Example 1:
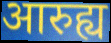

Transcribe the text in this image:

आरुह्य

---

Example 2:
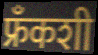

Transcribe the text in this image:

फ्रँकशी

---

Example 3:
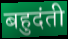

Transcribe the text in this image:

बहुदंती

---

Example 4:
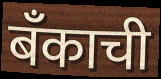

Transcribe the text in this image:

बँकाची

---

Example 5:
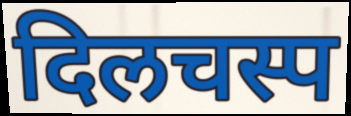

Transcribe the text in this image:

दिलचस्प